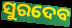
ସୁରଦେବ